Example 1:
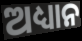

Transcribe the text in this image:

ଅଧ୍ୟାନ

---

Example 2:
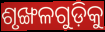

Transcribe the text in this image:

ଶୃଙ୍ଖଳଗୁଡ଼ିକୁ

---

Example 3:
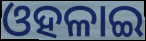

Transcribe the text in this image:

ଓହଳାଇ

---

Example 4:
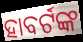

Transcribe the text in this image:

ହାବର୍ଟଙ୍କ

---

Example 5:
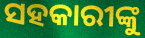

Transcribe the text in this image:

ସହକାରୀଙ୍କୁ